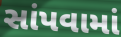
સાંપવામાં